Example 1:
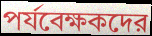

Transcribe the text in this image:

পর্যবেক্ষকদের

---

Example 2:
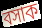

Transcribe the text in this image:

বসাক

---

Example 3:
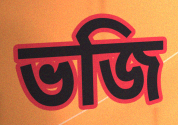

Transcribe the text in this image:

ভজি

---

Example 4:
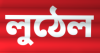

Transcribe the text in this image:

লুঠেল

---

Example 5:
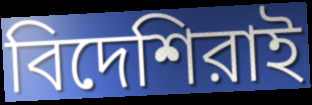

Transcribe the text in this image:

বিদেশিরাই